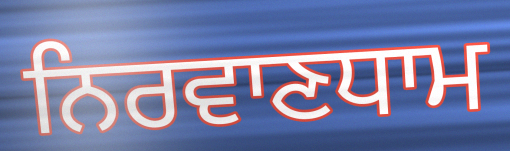
ਨਿਰਵਾਣਧਾਮ